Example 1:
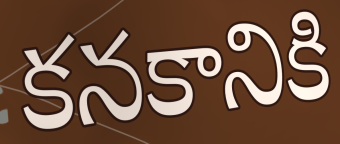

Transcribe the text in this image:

కనకానికి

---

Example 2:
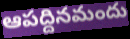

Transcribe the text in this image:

ఆపద్దినమందు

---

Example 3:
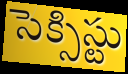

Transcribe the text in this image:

సెక్సిస్టు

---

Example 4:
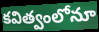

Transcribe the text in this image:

కవిత్వంలోనూ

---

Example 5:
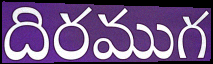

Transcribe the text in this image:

దిరముగ